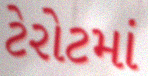
ટેરોટમાં